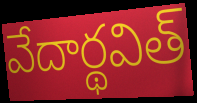
వేదార్థవిత్